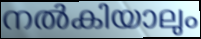
നൽകിയാലും